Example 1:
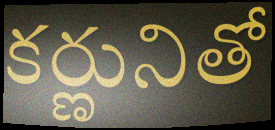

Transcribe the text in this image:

కర్ణునితో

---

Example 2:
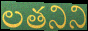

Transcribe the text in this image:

లతనిని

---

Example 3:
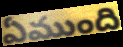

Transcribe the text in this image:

ఏముంది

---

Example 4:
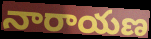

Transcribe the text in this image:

నారాయణ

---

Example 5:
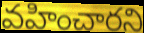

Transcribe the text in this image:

వహించారని